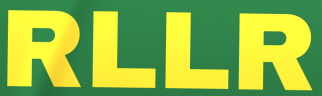
RLLR